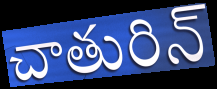
చాతురిన్